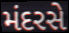
મંદરસે